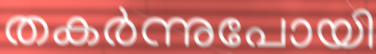
തകർന്നുപോയി